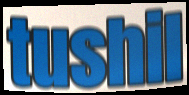
tushil